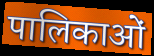
पालिकाओं